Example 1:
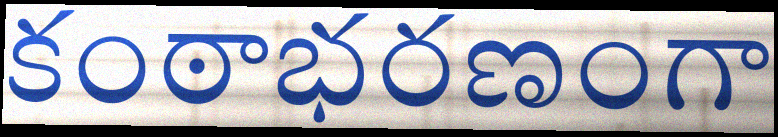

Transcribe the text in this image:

కంఠాభరణంగా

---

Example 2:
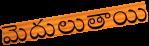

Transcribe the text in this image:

మెదులుతాయి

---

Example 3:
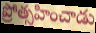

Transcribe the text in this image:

ప్రోత్సహించాడు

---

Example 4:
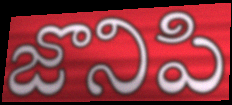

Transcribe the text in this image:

జొనిపి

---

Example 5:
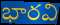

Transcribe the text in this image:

భారవి